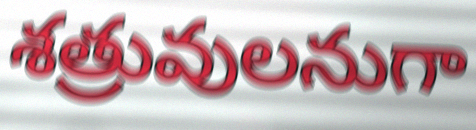
శత్రువులనుగా